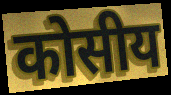
कोसीय